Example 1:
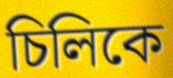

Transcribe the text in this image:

চিলিকে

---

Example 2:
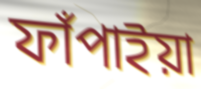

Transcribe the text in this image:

ফাঁপাইয়া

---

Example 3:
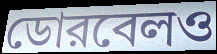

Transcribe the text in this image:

ডোরবেলও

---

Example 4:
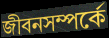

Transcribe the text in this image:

জীবনসম্পর্কে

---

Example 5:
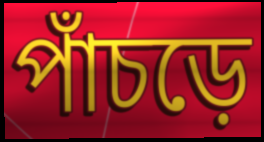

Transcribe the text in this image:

পাঁচড়ে